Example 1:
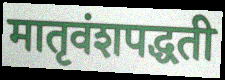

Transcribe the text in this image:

मातृवंशपद्धती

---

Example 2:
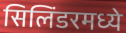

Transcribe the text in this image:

सिलिंडरमध्ये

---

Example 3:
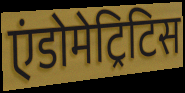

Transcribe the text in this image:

एंडोमेट्रिटिस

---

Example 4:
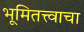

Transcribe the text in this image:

भूमितत्त्वाचा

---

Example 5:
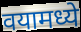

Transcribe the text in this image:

वयामध्ये